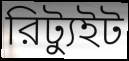
রিট্যুইট